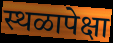
स्थळापेक्षा